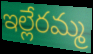
ఇల్లేరమ్మ